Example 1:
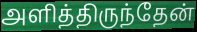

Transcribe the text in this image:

அளித்திருந்தேன்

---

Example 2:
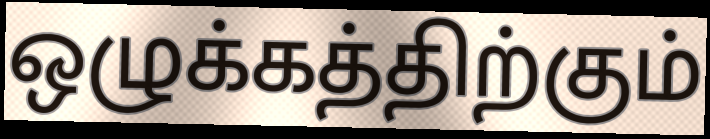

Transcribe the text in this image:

ஒழுக்கத்திற்கும்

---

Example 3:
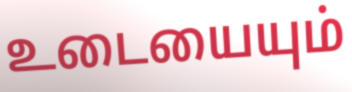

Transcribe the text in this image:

உடையையும்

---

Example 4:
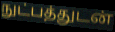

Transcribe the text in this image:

நுட்பத்துடன்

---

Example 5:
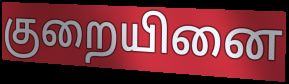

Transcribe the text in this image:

குறையினை